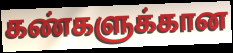
கண்களுக்கான